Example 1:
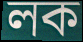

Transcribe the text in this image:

লক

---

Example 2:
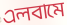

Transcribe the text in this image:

এলবামে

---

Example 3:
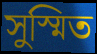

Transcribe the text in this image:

সুস্মিত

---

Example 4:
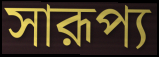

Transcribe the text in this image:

সারূপ্য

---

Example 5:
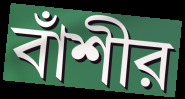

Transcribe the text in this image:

বাঁশীর